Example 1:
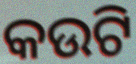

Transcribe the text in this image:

କଉଟି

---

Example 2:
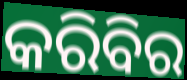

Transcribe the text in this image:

କରିବିର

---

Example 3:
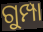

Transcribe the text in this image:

ଗୁମ୍ପା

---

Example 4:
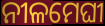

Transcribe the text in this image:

ନୀଳମେଘୀ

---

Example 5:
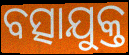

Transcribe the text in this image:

ବତ୍ସାଯୁକ୍ତ